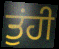
ਤੁਂਹੀ